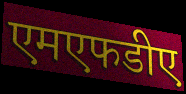
एमएफडीए